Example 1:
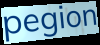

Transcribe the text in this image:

pegion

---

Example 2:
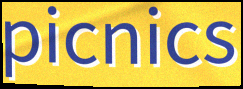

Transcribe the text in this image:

picnics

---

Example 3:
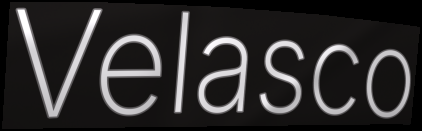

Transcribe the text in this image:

Velasco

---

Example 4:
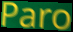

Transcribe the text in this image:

Paro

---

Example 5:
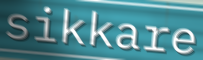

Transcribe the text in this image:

sikkare